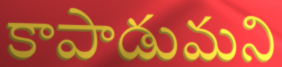
కాపాడుమని